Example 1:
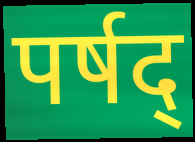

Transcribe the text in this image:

पर्षद्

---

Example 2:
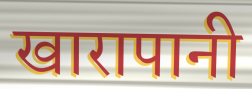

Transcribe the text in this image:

खारापानी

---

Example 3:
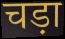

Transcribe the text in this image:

चड़ा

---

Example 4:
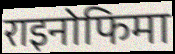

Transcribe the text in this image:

राइनोफिमा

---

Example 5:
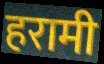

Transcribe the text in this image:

हरामी